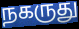
நகருது